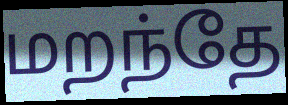
மறந்தே